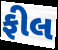
ફીલ